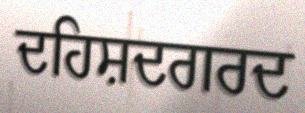
ਦਹਿਸ਼ਦਗਰਦ